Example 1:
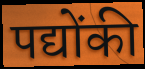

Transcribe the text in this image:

पद्योंकी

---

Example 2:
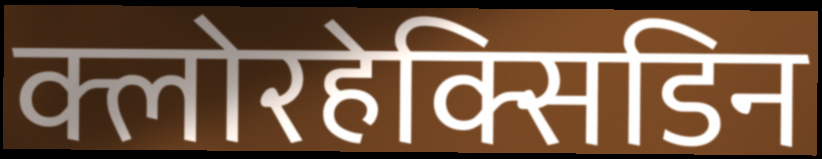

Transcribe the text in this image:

क्लोरहेक्सिडिन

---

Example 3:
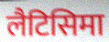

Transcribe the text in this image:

लैटिसिमा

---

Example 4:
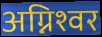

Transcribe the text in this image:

अग्निश्वर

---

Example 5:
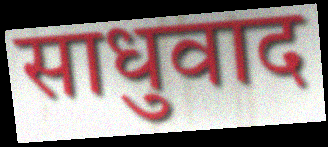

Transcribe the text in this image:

साधुवाद